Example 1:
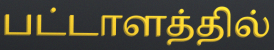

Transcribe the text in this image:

பட்டாளத்தில்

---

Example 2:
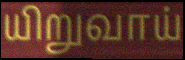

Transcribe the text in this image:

யிறுவாய்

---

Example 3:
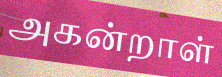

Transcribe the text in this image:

அகன்றாள்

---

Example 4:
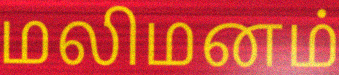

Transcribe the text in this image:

மலிமனம்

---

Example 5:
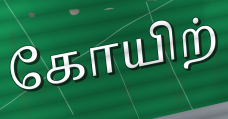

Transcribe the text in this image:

கோயிற்